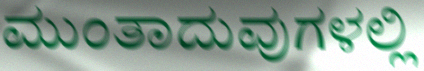
ಮುಂತಾದುವುಗಳಲ್ಲಿ